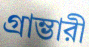
গ্রাম্ভারী